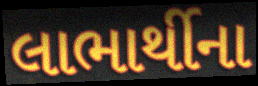
લાભાર્થીના